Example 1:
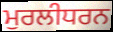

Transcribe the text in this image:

ਮੁਰਲੀਧਰਨ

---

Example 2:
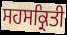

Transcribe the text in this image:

ਸਹਸਕ੍ਰਿਤੀ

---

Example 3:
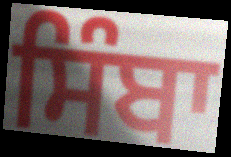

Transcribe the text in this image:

ਸਿੰਬਾ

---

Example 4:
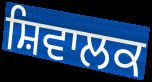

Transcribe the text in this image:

ਸ਼ਿਵਾਲਕ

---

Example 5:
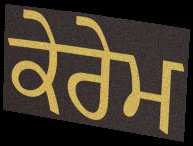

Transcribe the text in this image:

ਕੇਰੇਮ